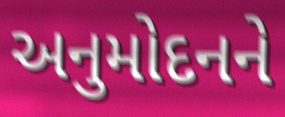
અનુમોદનને